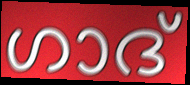
ഗാദ്